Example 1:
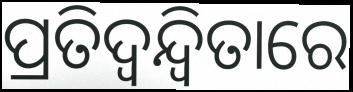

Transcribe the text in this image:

ପ୍ରତିଦ୍ୱନ୍ଦ୍ବିତାରେ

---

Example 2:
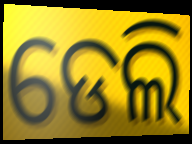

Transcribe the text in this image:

ଡେଲି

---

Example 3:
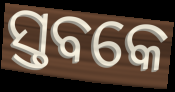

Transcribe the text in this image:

ସ୍ତବକେ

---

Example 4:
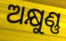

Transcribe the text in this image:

ଅକ୍ଷୁଣ୍ଣ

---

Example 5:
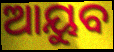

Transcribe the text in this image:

ଆୟୁବ